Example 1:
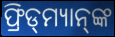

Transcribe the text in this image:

ଫ୍ରିଡ୍‌ମ୍ୟାନ୍‌ଙ୍କ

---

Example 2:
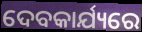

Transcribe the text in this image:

ଦେବକାର୍ଯ୍ୟରେ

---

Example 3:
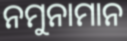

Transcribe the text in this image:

ନମୁନାମାନ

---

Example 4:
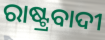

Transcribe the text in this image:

ରାଷ୍ଟ୍ରବାଦୀ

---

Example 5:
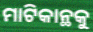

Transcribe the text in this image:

ମାଟିକାନ୍ଥକୁ